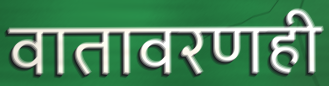
वातावरणही